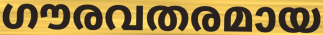
ഗൗരവതരമായ